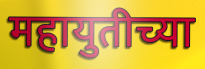
महायुतीच्या